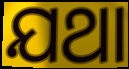
ଯଥା